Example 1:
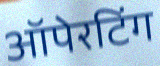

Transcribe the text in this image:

ऑपेरटिंग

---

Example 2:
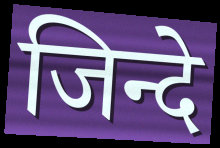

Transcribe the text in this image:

जिन्दे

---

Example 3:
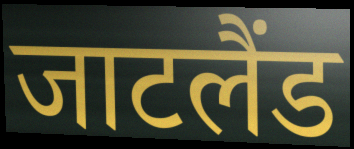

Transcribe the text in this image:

जाटलैंड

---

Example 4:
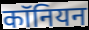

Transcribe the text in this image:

कॉनियन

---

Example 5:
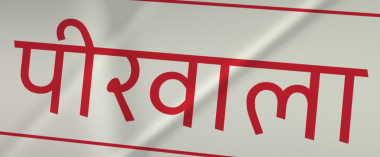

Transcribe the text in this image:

पीरवाला